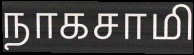
நாகசாமி